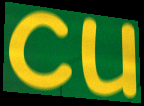
cu